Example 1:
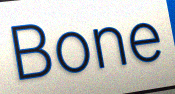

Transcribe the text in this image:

Bone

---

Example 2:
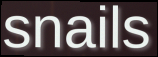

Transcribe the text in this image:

snails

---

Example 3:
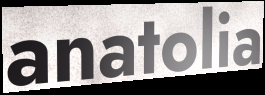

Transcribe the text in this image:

anatolia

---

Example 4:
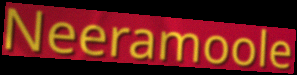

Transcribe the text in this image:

Neeramoole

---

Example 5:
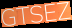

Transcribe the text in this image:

GTSEZ